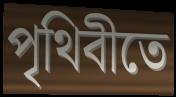
পৃথিবীতে